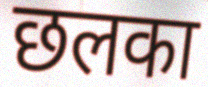
छलका